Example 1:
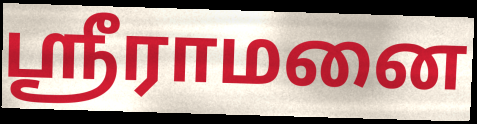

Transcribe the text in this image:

ஸ்ரீராமனை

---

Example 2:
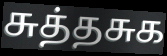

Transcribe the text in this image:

சுத்தசுக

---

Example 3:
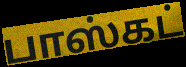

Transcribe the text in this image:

பாஸ்கட்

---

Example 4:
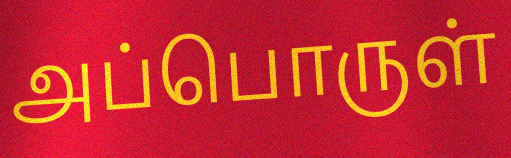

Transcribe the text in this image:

அப்பொருள்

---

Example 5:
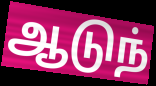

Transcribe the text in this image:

ஆடுந்